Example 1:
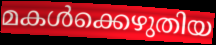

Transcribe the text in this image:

മകൾക്കെഴുതിയ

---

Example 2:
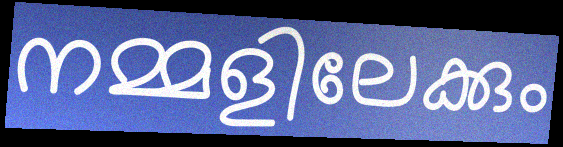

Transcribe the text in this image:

നമ്മളിലേക്കും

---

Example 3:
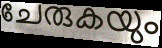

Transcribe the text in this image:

ചേരുകയും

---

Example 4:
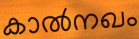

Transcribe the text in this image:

കാൽനഖം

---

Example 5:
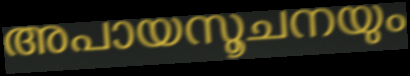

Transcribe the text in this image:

അപായസൂചനയും